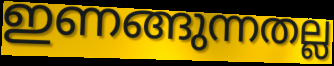
ഇണങ്ങുന്നതല്ല